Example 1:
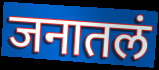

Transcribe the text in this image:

जनातलं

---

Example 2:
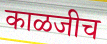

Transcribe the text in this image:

काळजीच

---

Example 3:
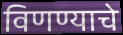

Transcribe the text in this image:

विणण्याचे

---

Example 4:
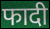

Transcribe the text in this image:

फादी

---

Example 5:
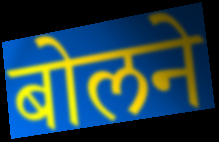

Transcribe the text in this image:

बोलने